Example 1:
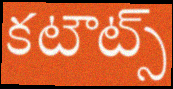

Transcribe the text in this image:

కటౌట్స్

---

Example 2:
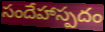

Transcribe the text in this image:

సందేహాస్పదం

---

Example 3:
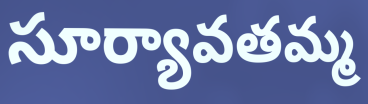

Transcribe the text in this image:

సూర్యావతమ్మ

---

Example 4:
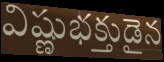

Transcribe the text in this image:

విష్ణుభక్తుడైన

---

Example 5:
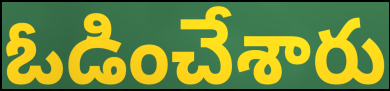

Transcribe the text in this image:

ఓడించేశారు